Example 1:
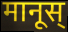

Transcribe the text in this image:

मानूस्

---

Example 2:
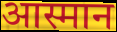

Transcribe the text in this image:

आस्मान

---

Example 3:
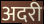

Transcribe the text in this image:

अदरी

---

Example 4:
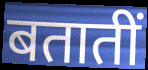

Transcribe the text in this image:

बतातीं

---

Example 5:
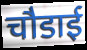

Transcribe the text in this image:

चौडाई